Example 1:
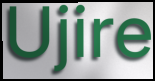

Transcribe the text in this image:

Ujire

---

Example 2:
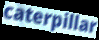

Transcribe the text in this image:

caterpillar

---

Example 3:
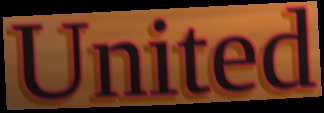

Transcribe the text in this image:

United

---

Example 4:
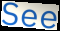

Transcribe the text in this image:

See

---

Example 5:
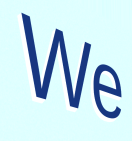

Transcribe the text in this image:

We